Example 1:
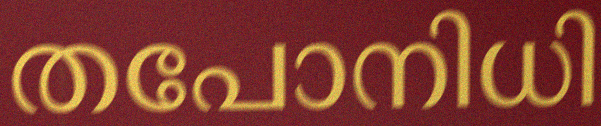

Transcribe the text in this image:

തപോനിധി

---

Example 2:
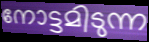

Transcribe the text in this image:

നോട്ടമിടുന്ന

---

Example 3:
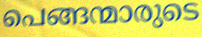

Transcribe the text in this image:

പെങ്ങന്മാരുടെ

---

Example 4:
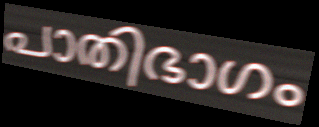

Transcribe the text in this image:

പാതിഭാഗം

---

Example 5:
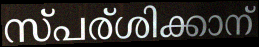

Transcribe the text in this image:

സ്പര്ശിക്കാന്